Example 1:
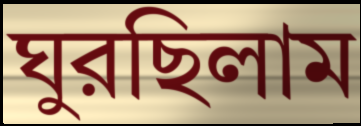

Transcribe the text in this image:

ঘুরছিলাম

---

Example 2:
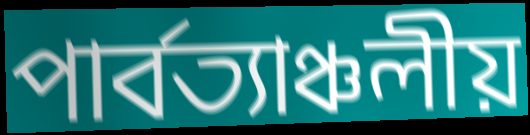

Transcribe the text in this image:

পার্বত্যাঞ্চলীয়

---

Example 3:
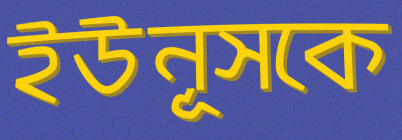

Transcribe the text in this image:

ইউনূসকে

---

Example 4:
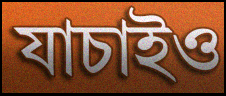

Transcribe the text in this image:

যাচাইও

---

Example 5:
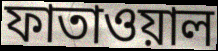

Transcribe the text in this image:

ফাতাওয়াল